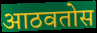
आठवतोस